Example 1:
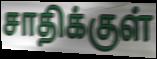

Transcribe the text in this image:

சாதிக்குள்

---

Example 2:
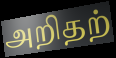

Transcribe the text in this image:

அறிதற்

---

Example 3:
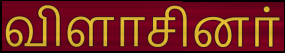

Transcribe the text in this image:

விளாசினர்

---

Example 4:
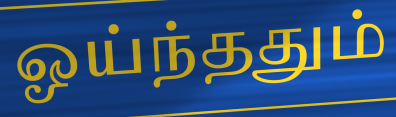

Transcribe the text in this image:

ஓய்ந்ததும்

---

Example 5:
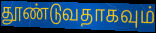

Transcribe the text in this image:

தூண்டுவதாகவும்